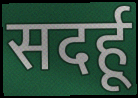
सदर्हू